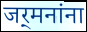
जर्मनांना